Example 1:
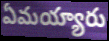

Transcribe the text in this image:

ఏమయ్యారు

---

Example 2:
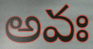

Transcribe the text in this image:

అవః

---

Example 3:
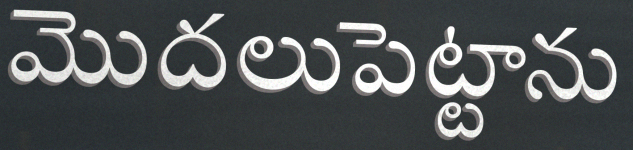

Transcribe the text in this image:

మొదలుపెట్టాను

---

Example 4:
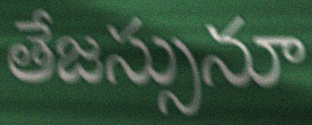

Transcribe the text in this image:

తేజస్సునూ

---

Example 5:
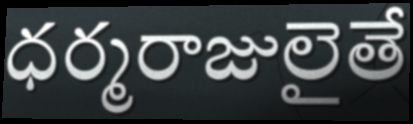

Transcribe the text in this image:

ధర్మరాజులైతే